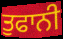
ਤੁਫਾਨੀ